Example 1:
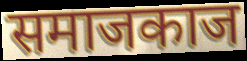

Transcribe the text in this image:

समाजकाज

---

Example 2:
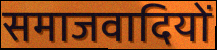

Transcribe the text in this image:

समाजवादियों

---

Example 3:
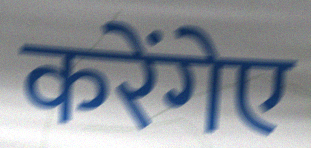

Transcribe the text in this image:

करेंगेए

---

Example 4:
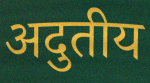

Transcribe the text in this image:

अदुतीय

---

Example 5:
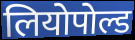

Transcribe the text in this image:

लियोपोल्ड